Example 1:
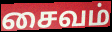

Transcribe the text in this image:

சைவம்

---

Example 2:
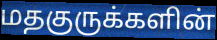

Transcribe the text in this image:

மதகுருக்களின்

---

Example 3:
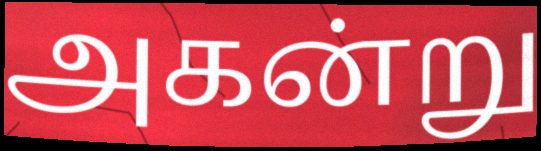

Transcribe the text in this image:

அகன்று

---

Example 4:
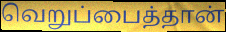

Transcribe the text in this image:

வெறுப்பைத்தான்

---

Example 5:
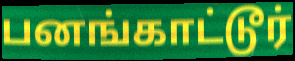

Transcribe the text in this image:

பனங்காட்டூர்